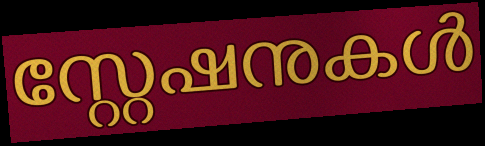
സ്റ്റേഷനുകൾ